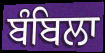
ਬੰਬਿਲਾ